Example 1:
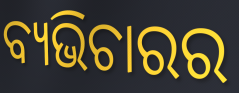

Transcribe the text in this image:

ବ୍ୟଭିଚାରର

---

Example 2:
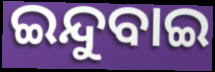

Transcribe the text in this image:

ଇନ୍ଦୁବାଇ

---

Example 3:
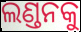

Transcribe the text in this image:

ଲଣ୍ଡନକୁ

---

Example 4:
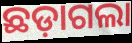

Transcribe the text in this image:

ଛଡ଼ାଗଲା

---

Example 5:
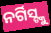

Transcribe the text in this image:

ନର୍ଗିସ୍ଙ୍କୁ